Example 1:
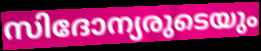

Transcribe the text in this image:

സിദോന്യരുടെയും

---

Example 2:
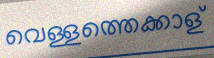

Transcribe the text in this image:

വെള്ളത്തെക്കാള്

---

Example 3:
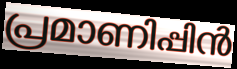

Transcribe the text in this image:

പ്രമാണിപ്പിൻ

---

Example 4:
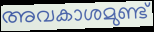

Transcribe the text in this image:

അവകാശമുണ്ട്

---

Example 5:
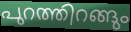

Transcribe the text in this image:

പുറത്തിറങ്ങും